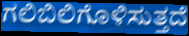
ಗಲಿಬಿಲಿಗೊಳಿಸುತ್ತದೆ